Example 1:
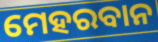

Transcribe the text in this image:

ମେହରବାନ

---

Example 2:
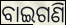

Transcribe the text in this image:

ବାଇଗଣି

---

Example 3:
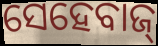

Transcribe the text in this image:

ସେହେବାଜ୍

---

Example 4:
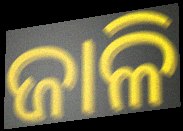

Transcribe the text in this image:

ଜାଳି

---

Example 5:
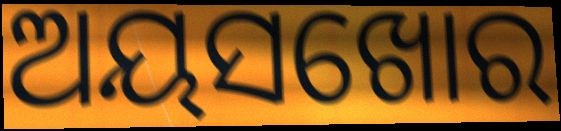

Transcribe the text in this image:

ଅୟସଖୋର